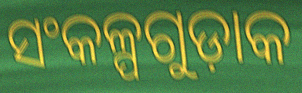
ସଂକଳ୍ପଗୁଡ଼ାକ